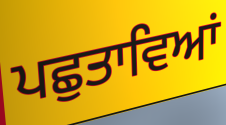
ਪਛੁਤਾਵਿਆਂ